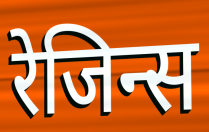
रेजिन्स